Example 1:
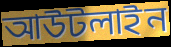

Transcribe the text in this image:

আউটলাইন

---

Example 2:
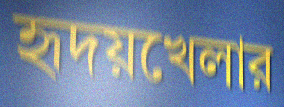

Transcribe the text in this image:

হৃদয়খেলার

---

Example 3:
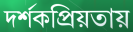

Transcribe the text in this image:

দর্শকপ্রিয়তায়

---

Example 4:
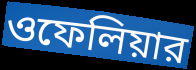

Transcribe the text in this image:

ওফেলিয়ার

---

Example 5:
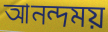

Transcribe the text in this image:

আনন্দময়